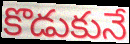
కొడుకునే